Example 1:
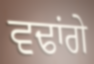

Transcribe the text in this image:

ਵਢਾਂਗੇ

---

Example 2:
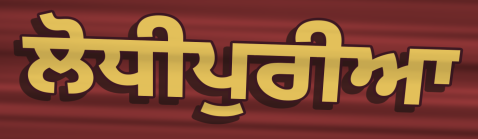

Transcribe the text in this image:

ਲੋਧੀਪੁਰੀਆ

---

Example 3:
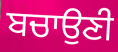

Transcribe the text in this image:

ਬਚਾਉਣੀ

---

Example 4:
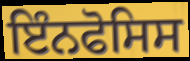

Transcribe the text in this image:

ਇੰਨਫੋਸਿਸ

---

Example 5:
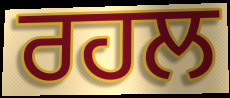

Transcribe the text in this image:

ਰਹਲ